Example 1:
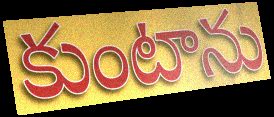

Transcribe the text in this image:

కుంటాను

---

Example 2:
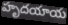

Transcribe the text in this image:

హృదయాయ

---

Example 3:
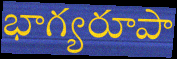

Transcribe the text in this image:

భాగ్యరూపా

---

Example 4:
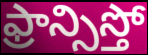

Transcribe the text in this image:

ఫ్రాన్సిస్తో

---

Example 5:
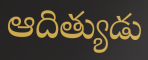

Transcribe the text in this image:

ఆదిత్యుడు